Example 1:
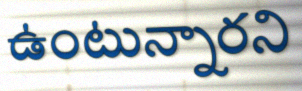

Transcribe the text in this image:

ఉంటున్నారని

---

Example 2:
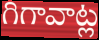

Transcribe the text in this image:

గిగావాట్ల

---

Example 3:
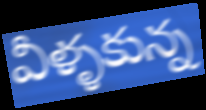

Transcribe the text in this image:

వీళ్ళకున్న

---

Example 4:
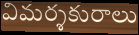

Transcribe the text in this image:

విమర్శకురాలు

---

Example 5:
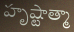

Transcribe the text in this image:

హృష్టాత్మా